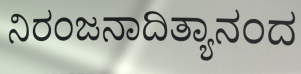
ನಿರಂಜನಾದಿತ್ಯಾನಂದ